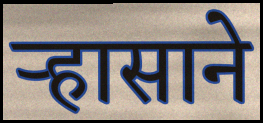
ऱ्हासाने